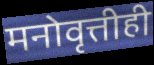
मनोवृत्तीही